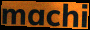
machi